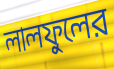
লালফুলের